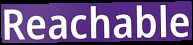
Reachable